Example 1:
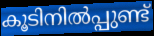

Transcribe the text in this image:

കൂടിനിൽപ്പുണ്ട്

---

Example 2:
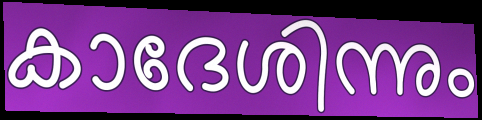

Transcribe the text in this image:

കാദേശിന്നും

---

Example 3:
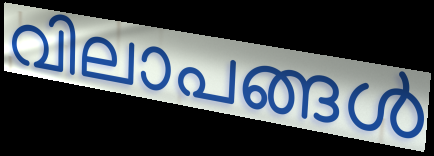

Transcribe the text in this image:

വിലാപങ്ങൾ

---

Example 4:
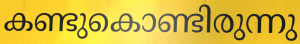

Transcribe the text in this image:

കണ്ടുകൊണ്ടിരുന്നു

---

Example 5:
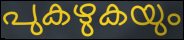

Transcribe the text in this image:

പുകഴുകയും